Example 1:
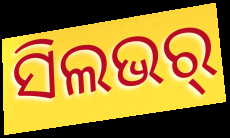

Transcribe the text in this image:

ସିଲଭର୍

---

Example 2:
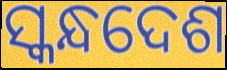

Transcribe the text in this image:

ସ୍କନ୍ଧଦେଶ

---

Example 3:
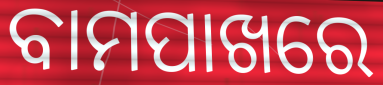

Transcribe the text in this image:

ବାମପାଖରେ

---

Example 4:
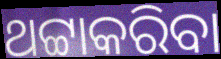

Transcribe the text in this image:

ଥଟ୍ଟାକରିବା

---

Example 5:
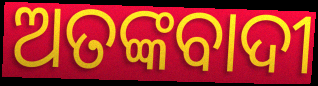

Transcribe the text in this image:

ଅତଙ୍କବାଦୀ